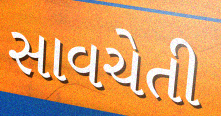
સાવચેતી